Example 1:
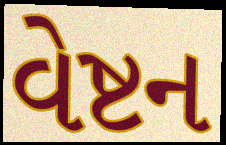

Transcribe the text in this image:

વેષ્ટન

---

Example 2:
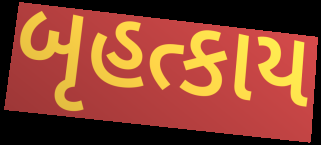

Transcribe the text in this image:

બૃહત્કાય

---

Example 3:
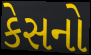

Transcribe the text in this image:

કેસનો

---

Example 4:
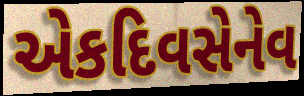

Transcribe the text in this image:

એકદિવસેનેવ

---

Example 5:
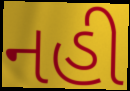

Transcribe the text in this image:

નહી